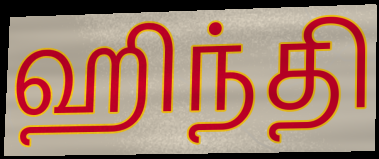
ஹிந்தி